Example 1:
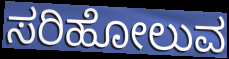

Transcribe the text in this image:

ಸರಿಹೋಲುವ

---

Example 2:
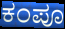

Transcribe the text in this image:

ಕಂಪೂ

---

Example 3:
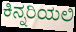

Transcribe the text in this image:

ಕಿನ್ನರಿಯಲಿ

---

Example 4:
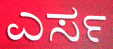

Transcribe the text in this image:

ಎರ್ಸ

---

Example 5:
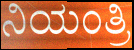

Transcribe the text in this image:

ನಿಯಂತ್ರಿ